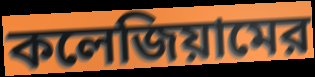
কলেজিয়ামের